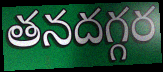
తనదగ్గర